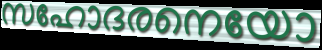
സഹോദരനെയോ